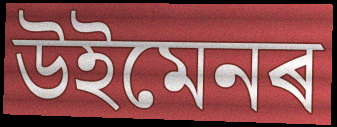
উইমেনৰ